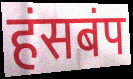
हंसबंप